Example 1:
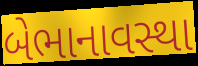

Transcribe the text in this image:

બેભાનાવસ્થા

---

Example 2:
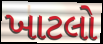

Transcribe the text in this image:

ખાટલો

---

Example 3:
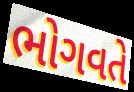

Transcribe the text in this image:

ભોગવતે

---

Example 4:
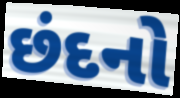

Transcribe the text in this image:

છંદનો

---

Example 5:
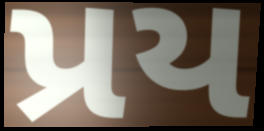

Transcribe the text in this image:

પ્રય